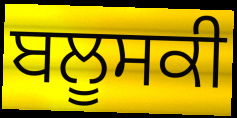
ਬਲੂਸਕੀ